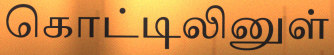
கொட்டிலினுள்